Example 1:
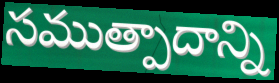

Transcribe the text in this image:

సముత్పాదాన్ని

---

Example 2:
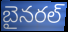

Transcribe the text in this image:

బైనరల్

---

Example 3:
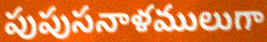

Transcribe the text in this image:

పుపుసనాళములుగా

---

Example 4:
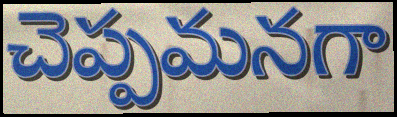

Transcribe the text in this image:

చెప్పమనగా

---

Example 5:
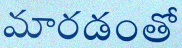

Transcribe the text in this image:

మారడంతో